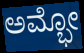
ಅಮ್ಭೋ